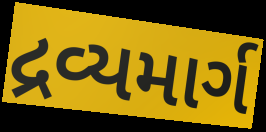
દ્રવ્યમાર્ગ